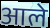
आले